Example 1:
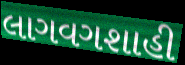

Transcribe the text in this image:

લાગવગશાહી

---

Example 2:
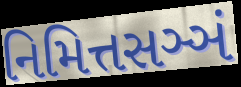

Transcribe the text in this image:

નિમિત્તસઞ્ઞં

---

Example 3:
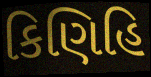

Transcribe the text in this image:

કિણિહિ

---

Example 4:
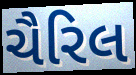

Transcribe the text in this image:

ચૈરિલ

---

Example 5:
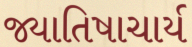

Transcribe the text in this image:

જ્યાતિષાચાર્ય